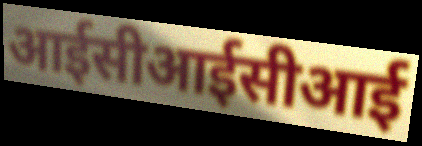
आईसीआईसीआई